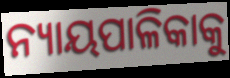
ନ୍ୟାୟପାଳିକାକୁ